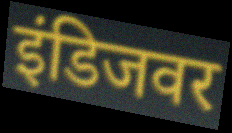
इंडिजवर